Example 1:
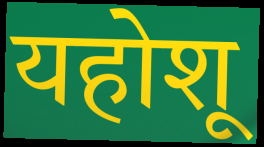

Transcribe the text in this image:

यहोशू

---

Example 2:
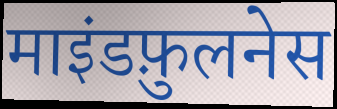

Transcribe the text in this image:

माइंडफ़ुलनेस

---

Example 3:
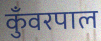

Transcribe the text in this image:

कुँवरपाल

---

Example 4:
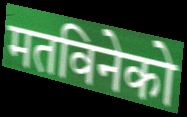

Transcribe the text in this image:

मतविनेको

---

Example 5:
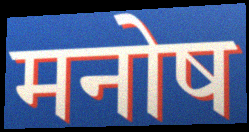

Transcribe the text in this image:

मनोष